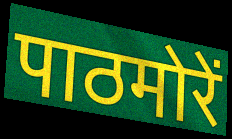
पाठमोरें